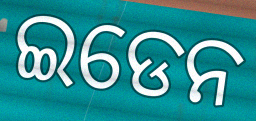
ଇଡେନ